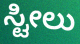
ಸ್ಟೀಲು